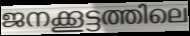
ജനക്കൂട്ടത്തിലെ